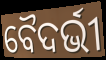
ବୈଦର୍ଭୀ